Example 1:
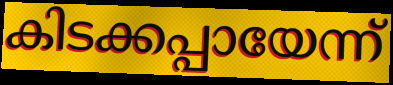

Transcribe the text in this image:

കിടക്കപ്പായേന്ന്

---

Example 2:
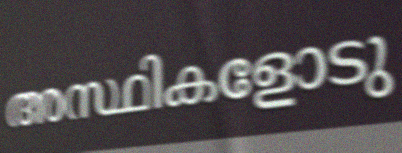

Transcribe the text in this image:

അസ്ഥികളോടു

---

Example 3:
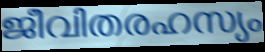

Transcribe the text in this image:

ജീവിതരഹസ്യം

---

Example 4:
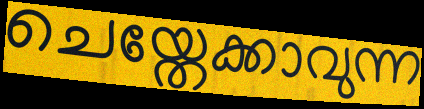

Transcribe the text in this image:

ചെയ്തേക്കാവുന്ന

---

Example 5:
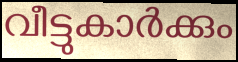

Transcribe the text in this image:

വീട്ടുകാർക്കും